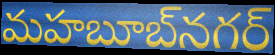
మహబూబ్‌నగర్